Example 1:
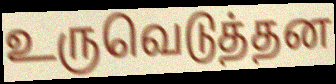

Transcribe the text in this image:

உருவெடுத்தன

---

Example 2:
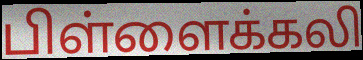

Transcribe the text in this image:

பிள்ளைக்கலி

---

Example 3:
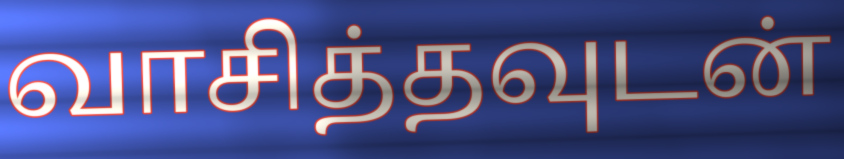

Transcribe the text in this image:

வாசித்தவுடன்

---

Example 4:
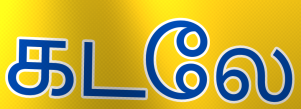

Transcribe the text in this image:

கடலே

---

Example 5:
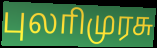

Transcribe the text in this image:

புலரிமுரசு